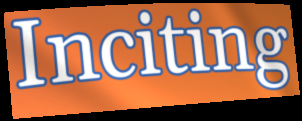
Inciting